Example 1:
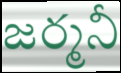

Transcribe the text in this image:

జర్మనీ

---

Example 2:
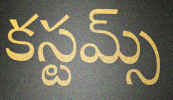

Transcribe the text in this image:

కస్టమ్స్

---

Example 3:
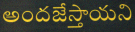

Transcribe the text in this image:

అందజేస్తాయని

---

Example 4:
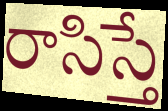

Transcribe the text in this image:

రాసిస్తే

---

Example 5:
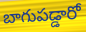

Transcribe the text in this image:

బాగుపడ్డారో